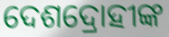
ଦେଶଦ୍ରୋହୀଙ୍କ